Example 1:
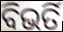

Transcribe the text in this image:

ବିଭର୍ତି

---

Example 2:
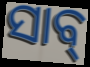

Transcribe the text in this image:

ସାବ୍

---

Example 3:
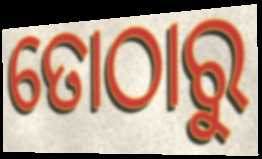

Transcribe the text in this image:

ତୋଠାରୁ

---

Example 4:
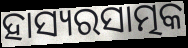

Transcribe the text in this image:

ହାସ୍ୟରସାତ୍ମକ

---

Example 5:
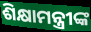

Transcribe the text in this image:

ଶିକ୍ଷାମନ୍ତ୍ରୀଙ୍କ